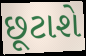
છૂટાશે